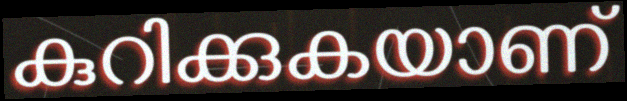
കുറിക്കുകയാണ്